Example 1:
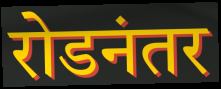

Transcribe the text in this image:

रोडनंतर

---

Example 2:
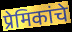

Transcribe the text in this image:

प्रेमिकांचे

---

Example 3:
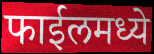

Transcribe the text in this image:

फाईलमध्ये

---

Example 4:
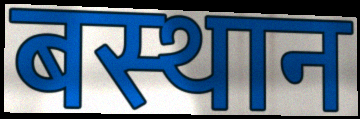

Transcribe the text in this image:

बस्थान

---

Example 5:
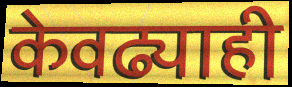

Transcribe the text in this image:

केवढ्याही